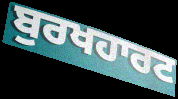
ਬੁਰਖਹਾਰਟ